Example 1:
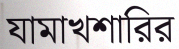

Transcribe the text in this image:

যামাখশারির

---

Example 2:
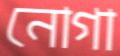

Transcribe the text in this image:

নোগা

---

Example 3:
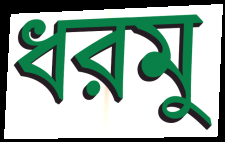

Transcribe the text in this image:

ধরমু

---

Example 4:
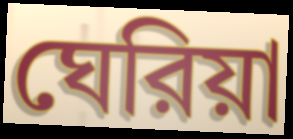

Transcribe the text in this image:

ঘেরিয়া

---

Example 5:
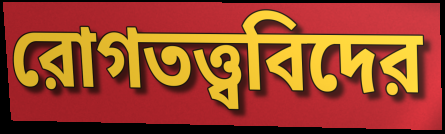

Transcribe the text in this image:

রোগতত্ত্ববিদের